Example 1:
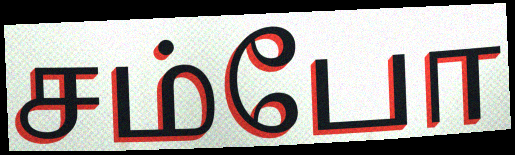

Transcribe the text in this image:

சம்போ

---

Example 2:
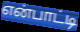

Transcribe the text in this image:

என்பாட்டி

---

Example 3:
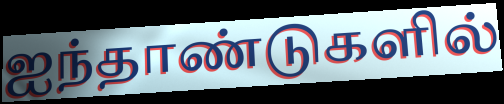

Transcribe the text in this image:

ஐந்தாண்டுகளில்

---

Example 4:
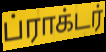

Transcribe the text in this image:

ப்ராக்டர்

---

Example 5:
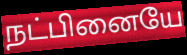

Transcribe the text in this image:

நட்பினையே